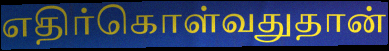
எதிர்கொள்வதுதான்